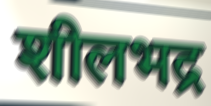
शीलभद्र